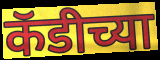
कॅडीच्या